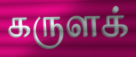
கருளக்